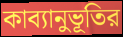
কাব্যানুভূতির